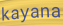
kayana